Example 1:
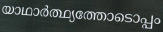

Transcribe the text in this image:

യാഥാർത്ഥ്യത്തോടൊപ്പം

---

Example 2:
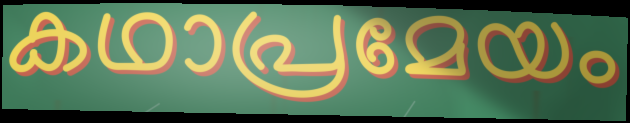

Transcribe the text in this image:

കഥാപ്രമേയം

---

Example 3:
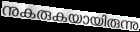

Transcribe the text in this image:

നുകരുകയായിരുന്നു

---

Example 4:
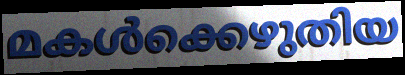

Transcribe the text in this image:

മകൾക്കെഴുതിയ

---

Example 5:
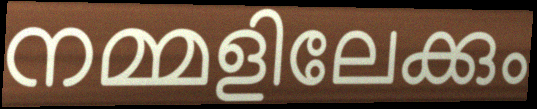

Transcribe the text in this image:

നമ്മളിലേക്കും